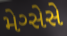
મેગ્સેસે